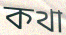
কথা